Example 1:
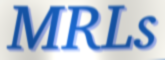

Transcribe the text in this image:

MRLs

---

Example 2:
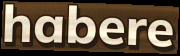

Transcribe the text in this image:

habere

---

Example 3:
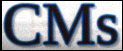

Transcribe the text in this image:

CMs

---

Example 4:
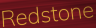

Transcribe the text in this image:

Redstone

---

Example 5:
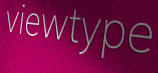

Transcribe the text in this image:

viewtype